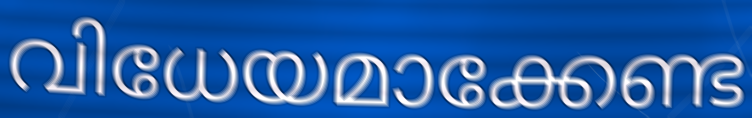
വിധേയമാക്കേണ്ട